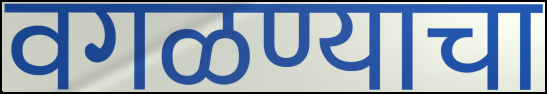
वगळण्याचा